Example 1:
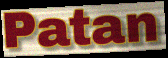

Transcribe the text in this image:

Patan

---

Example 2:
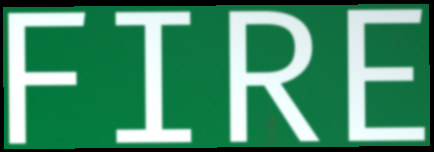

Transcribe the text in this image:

FIRE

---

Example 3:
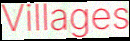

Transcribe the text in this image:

Villages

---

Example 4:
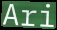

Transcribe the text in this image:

Ari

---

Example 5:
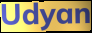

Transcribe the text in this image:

Udyan